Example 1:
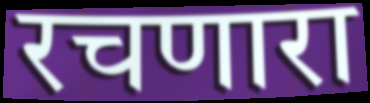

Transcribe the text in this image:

रचणारा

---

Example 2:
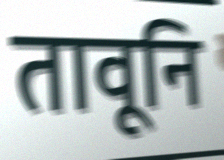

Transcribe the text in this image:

तावूनि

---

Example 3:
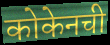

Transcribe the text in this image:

कोकेनची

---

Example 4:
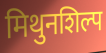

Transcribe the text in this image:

मिथुनशिल्प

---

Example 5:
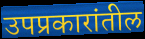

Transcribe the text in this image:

उपप्रकारांतील